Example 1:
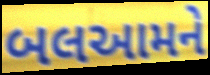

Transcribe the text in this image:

બલઆમને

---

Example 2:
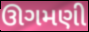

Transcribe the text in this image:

ઊગમણી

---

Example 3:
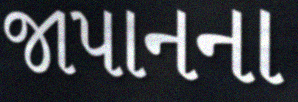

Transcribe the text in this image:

જાપાનના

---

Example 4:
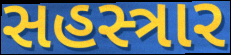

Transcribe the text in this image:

સહસ્ત્રાર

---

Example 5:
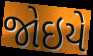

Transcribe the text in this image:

જોઇયે